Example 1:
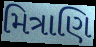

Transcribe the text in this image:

મિત્રાણિ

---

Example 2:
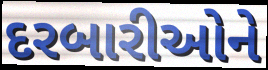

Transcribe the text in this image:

દરબારીઓને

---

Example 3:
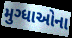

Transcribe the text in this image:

મુગ્ધાઓના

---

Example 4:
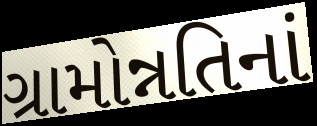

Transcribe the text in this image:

ગ્રામોન્નતિનાં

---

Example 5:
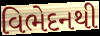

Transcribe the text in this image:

વિભેદનથી